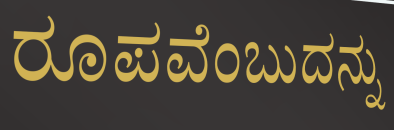
ರೂಪವೆಂಬುದನ್ನು